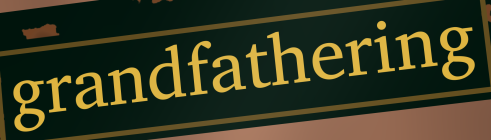
grandfathering